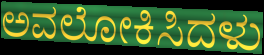
ಅವಲೋಕಿಸಿದಳು